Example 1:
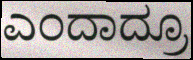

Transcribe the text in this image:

ಎಂದಾದ್ರೂ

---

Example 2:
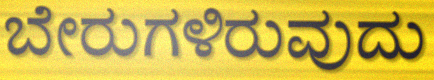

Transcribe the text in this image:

ಬೇರುಗಳಿರುವುದು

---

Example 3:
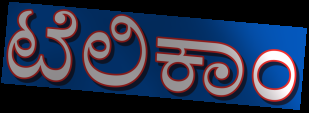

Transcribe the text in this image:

ಟೆಲಿಕಾಂ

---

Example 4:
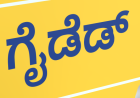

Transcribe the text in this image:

ಗೈಡೆಡ್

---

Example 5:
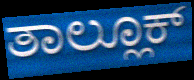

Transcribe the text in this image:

ತಾಲ್ಲೂಕ್